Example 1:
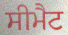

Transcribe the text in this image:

ਸੀਮੈਟ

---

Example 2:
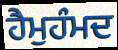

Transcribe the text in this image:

ਹੈਮੁਹੰਮਦ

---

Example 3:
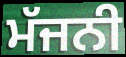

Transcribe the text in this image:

ਮੱਜਨੀ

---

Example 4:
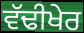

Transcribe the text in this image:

ਵੱਢੀਖੇਰ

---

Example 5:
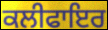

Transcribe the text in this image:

ਕਲੀਫਾਇਰ